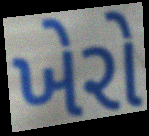
ખેરો